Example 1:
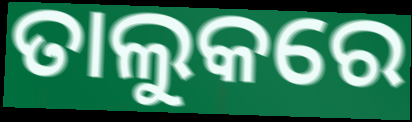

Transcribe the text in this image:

ତାଲୁକରେ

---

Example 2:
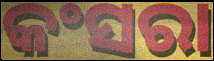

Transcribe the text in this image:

କଂସରା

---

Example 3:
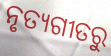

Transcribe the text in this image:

ନୃତ୍ୟଗୀତରୁ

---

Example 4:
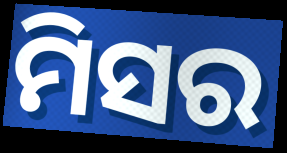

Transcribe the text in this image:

ମିସର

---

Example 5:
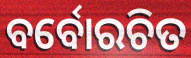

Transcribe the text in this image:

ବର୍ବୋରଚିତ